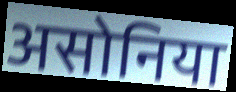
असोनिया